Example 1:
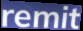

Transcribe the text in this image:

remit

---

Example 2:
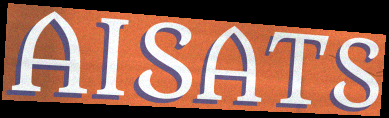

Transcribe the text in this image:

AISATS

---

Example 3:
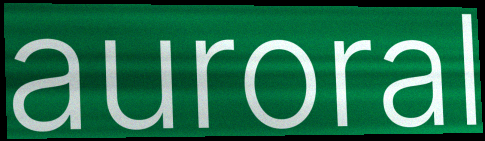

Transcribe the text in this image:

auroral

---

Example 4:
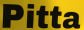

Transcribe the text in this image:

Pitta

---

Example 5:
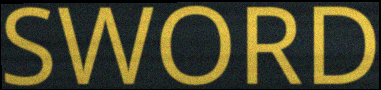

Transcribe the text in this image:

SWORD